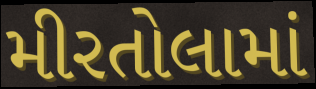
મીરતોલામાં